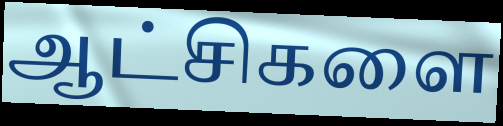
ஆட்சிகளை